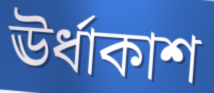
ঊর্ধাকাশ